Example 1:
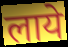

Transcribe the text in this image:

लाये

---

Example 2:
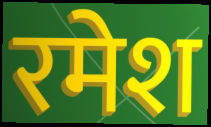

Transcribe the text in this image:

रमेश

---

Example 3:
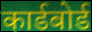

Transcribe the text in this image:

कार्डबोर्ड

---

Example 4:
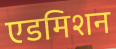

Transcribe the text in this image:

एडमिशन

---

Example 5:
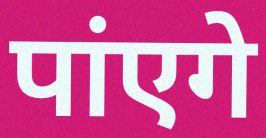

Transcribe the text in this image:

पांएगे